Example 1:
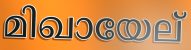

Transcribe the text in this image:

മിഖായേല്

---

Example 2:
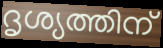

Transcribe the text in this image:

ദൃശ്യത്തിന്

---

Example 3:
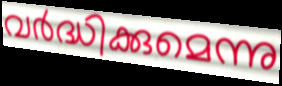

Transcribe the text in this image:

വർദ്ധിക്കുമെന്നു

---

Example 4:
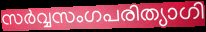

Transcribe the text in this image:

സർവ്വസംഗപരിത്യാഗി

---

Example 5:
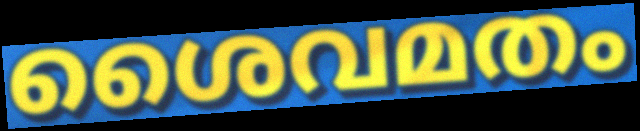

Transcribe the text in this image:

ശൈവമതം